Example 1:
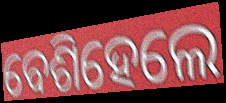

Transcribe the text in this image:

ବେଶିହେଲେ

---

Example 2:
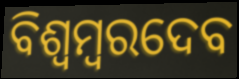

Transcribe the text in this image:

ବିଶ୍ୱମ୍ବରଦେବ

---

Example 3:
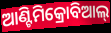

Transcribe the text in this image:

ଆଣ୍ଟିମିକ୍ରୋବିଆଲ୍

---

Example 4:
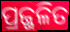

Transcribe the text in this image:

ପ୍ରଜ୍ଜଳିତ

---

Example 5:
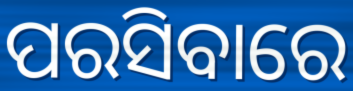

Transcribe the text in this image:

ପରସିବାରେ